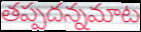
తప్పదన్నమాట